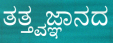
ತತ್ತ್ವಜ್ಞಾನದ